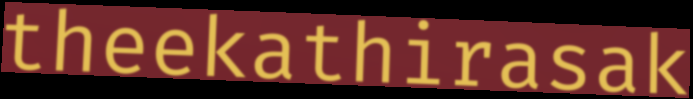
theekathirasak